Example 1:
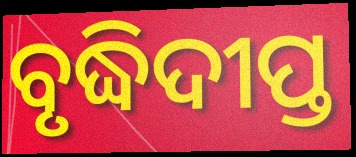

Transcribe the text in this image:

ବୃଦ୍ଧିଦୀପ୍ତ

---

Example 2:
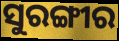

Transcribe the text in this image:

ସୁରଙ୍ଗୀର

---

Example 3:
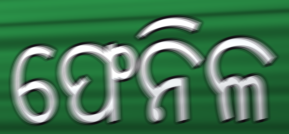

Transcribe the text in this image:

ଫେନିଳ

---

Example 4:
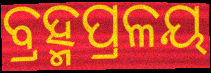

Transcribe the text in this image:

ବ୍ରହ୍ମପ୍ରଳୟ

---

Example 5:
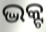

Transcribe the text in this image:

ଦ୍ଭକ୍ଟ